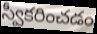
స్వీకరించడం